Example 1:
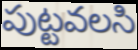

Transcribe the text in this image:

పుట్టవలసి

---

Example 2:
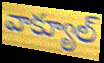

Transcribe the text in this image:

వాక్యూల్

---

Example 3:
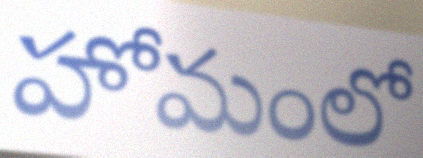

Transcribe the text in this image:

హోమంలో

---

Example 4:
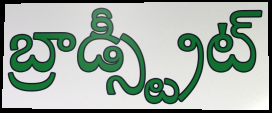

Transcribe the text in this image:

బ్రాడ్స్ట్రీట్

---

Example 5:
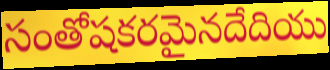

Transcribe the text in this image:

సంతోషకరమైనదేదియు